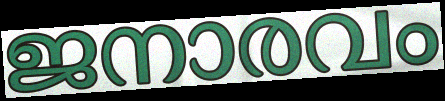
ജനാരവം